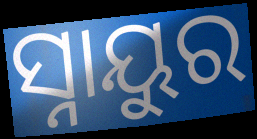
ସ୍ନାୟୁର